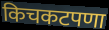
किचकटपणा